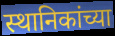
स्थानिकांच्या